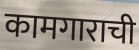
कामगाराची